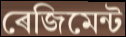
ৰেজিমেন্ট